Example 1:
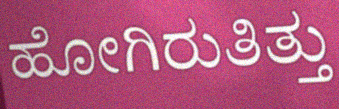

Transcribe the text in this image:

ಹೋಗಿರುತಿತ್ತು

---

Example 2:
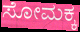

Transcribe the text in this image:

ಸೋಮಕ್ಕ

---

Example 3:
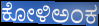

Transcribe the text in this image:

ಕೋಳಿಅಂಕ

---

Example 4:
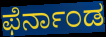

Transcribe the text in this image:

ಫೆರ್ನಾಂಡ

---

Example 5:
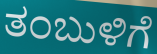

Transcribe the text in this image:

ತಂಬುಳಿಗೆ